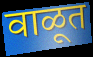
वाळूत